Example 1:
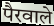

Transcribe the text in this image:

पैरवाले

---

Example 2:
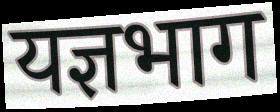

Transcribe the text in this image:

यज्ञभाग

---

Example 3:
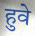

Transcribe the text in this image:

हुवे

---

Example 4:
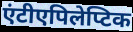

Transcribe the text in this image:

एंटीएपिलेप्टिक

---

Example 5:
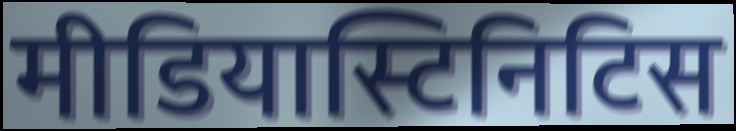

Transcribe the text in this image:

मीडियास्टिनिटिस